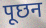
पूछन